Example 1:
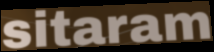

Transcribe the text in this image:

sitaram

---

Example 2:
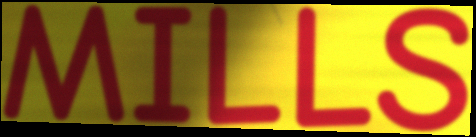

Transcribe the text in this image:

MILLS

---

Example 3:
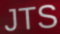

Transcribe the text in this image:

JTS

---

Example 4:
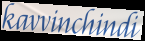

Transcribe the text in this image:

kavvinchindi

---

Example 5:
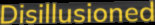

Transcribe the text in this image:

Disillusioned